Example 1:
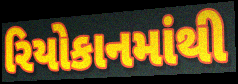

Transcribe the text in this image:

રિયોકાનમાંથી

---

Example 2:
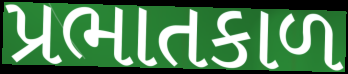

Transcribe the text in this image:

પ્રભાતકાળ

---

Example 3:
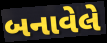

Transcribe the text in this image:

બનાવેલે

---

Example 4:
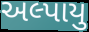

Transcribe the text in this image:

અલ્પાયુ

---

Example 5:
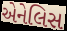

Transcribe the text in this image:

એનેલિસ